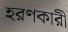
হরণকারী